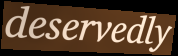
deservedly